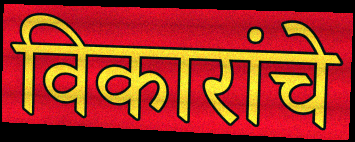
विकारांचे